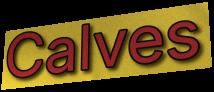
Calves